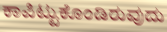
ಕಾಪಿಟ್ಟುಕೊಂಡಿರುವುದು